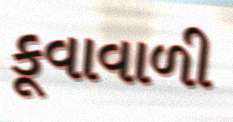
કૂવાવાળી